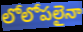
లోలోపలైనా